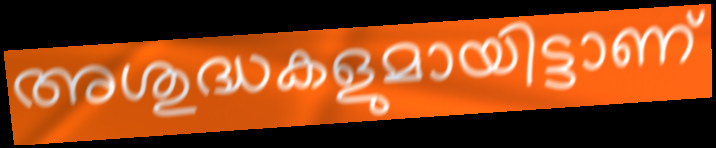
അശുദ്ധകളുമായിട്ടാണ്